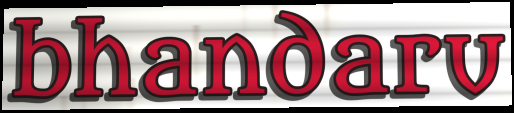
bhandaru